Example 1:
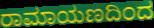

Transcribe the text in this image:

ರಾಮಾಯಣದಿಂದ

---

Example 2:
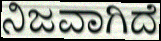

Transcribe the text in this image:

ನಿಜವಾಗಿದೆ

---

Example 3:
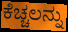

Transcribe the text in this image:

ಕೆಚ್ಚಲನ್ನು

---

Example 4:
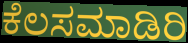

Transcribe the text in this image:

ಕೆಲಸಮಾಡಿರಿ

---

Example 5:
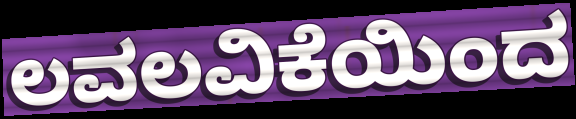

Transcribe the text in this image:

ಲವಲವಿಕೆಯಿಂದ